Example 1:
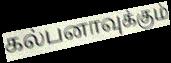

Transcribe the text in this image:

கல்பனாவுக்கும்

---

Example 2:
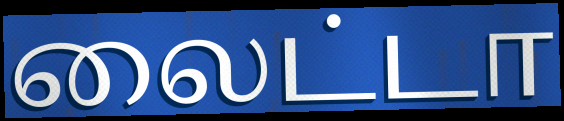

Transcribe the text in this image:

லைட்டா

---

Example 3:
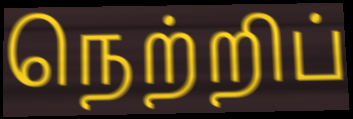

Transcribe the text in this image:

நெற்றிப்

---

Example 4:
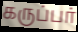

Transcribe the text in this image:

கருப்பர்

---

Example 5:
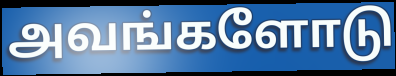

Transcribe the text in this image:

அவங்களோடு